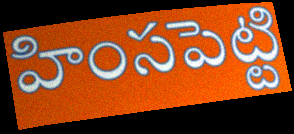
హింసపెట్టి